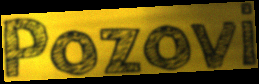
Pozovi